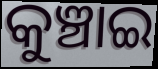
କୁଞ୍ଚାଇ